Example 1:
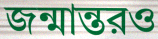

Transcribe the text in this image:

জন্মান্তরও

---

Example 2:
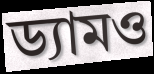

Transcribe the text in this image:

ড্যামও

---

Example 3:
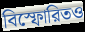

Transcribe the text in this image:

বিস্ফোরিতও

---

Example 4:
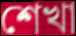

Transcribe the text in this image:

শেখা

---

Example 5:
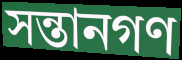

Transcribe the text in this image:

সন্তানগণ